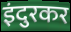
इंदुरकर